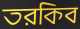
তরকিব